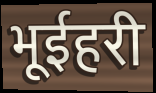
भूईहरी